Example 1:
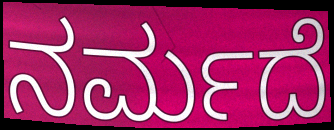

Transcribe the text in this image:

ನರ್ಮದೆ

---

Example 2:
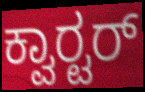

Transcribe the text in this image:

ಕ್ವಾರ‍್ಟರ್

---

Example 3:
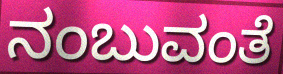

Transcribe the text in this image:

ನಂಬುವಂತೆ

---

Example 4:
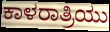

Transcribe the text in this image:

ಕಾಳರಾತ್ರಿಯು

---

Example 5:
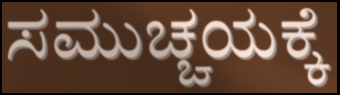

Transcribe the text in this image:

ಸಮುಚ್ಚಯಕ್ಕೆ